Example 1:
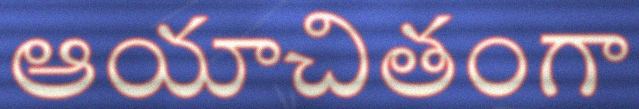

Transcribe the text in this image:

ఆయాచితంగా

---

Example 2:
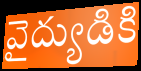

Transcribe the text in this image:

వైద్యుడికి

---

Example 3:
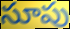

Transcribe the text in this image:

సూపు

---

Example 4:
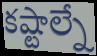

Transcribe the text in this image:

కష్టాల్నే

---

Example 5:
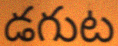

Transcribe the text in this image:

డగుట